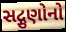
સદ્ગુણોનો